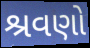
શ્રવણો